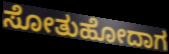
ಸೋತುಹೋದಾಗ